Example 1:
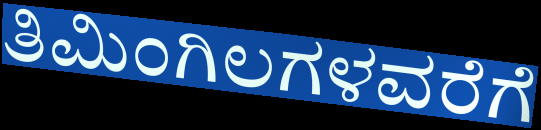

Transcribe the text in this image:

ತಿಮಿಂಗಿಲಗಳವರೆಗೆ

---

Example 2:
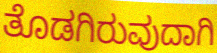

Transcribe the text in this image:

ತೊಡಗಿರುವುದಾಗಿ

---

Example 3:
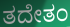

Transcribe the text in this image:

ತದೇತಂ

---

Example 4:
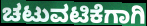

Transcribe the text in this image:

ಚಟುವಟಿಕೆಗಾಗಿ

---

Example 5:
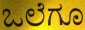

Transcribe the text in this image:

ಒಲೆಗೂ